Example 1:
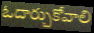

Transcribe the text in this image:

ఓదార్చుకోవాలి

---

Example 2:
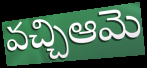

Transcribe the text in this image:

వచ్చిఆమె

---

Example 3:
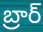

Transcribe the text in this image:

బ్రార్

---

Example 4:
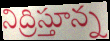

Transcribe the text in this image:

నిద్రిస్తూన్న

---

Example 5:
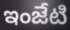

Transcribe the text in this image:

ఇంజేటి